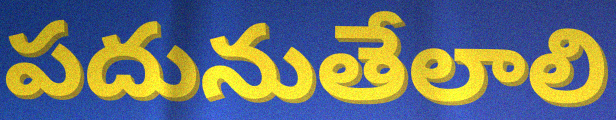
పదునుతేలాలి